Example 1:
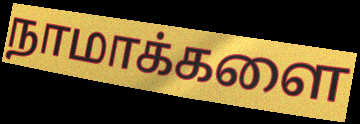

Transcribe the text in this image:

நாமாக்களை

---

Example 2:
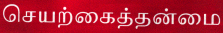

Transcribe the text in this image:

செயற்கைத்தன்மை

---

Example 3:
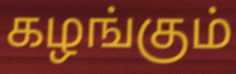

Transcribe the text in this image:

கழங்கும்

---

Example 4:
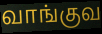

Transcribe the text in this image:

வாங்குவ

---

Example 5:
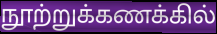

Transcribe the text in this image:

நூற்றுக்கணக்கில்